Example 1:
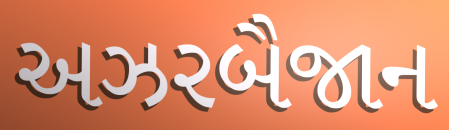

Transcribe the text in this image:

અઝરબૈજાન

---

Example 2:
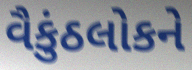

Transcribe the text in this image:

વૈકુંઠલોકને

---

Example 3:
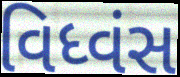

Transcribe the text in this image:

વિધ્વંસ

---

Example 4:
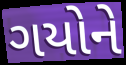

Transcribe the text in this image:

ગયોને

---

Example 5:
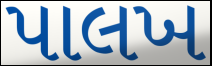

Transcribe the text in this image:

પાલખ